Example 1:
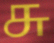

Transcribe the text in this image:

சு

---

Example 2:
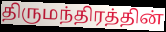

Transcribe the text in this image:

திருமந்திரத்தின்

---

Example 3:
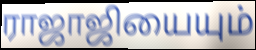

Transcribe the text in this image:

ராஜாஜியையும்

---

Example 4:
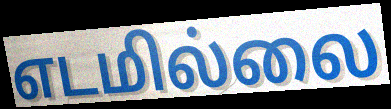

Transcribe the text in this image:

எடமில்லை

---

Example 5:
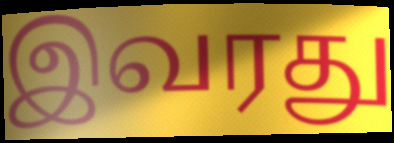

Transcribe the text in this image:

இவரது